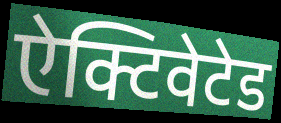
ऐक्टिवेटेड